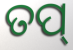
ତପ୍